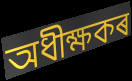
অধীক্ষকৰ